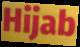
Hijab